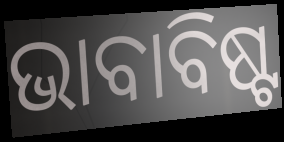
ଭାବାବିଷ୍ଟ